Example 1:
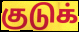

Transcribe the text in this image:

குடுக்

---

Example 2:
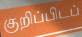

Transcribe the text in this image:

குறிப்பிடப்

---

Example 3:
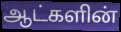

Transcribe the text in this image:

ஆட்களின்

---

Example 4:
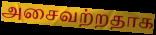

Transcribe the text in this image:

அசைவற்றதாக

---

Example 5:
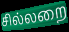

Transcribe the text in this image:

சில்லறை